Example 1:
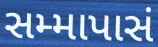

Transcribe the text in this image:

સમ્માપાસં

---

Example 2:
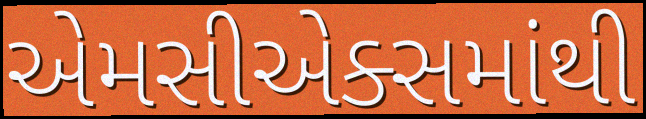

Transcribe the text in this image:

એમસીએક્સમાંથી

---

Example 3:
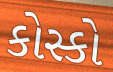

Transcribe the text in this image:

કોસ્કો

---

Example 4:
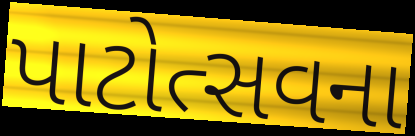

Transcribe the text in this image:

પાટોત્સવના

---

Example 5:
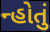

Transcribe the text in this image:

ન્હોતું